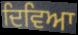
ਦਿਵਿਆ